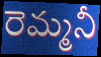
రెమ్మనీ